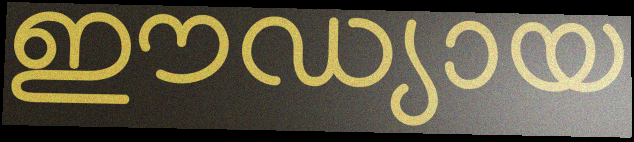
ഈഡ്യായ